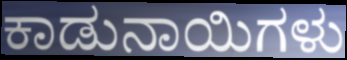
ಕಾಡುನಾಯಿಗಳು